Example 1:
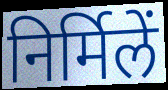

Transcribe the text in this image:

निर्मिलें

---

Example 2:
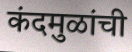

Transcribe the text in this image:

कंदमुळांची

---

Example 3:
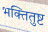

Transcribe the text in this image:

भक्तितुष्ट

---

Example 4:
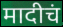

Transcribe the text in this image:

मादीचं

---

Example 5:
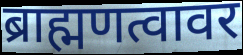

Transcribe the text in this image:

ब्राह्मणत्वावर